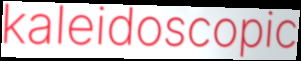
kaleidoscopic